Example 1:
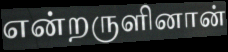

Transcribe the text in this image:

என்றருளினான்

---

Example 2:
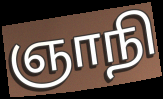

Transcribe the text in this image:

ஞாநி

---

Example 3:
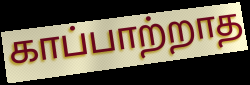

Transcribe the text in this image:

காப்பாற்றாத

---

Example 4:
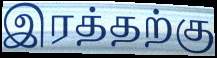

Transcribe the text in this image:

இரத்தற்கு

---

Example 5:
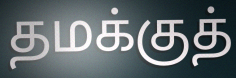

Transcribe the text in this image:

தமக்குத்